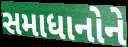
સમાધાનોને